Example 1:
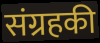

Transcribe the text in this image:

संग्रहकी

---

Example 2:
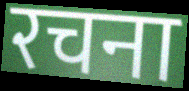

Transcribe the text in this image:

रचना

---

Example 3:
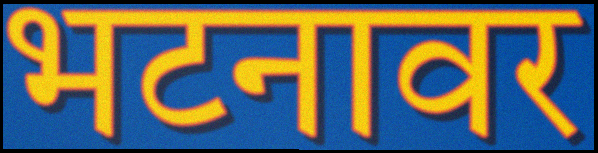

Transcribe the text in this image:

भटनावर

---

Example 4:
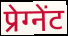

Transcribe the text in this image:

प्रेग्नेंट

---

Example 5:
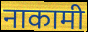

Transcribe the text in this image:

नाकामी